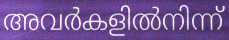
അവർകളിൽനിന്ന്